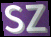
sz